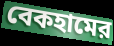
বেকহামের